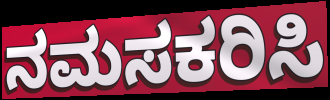
ನಮಸಕರಿಸಿ